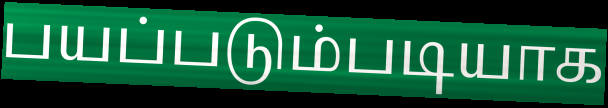
பயப்படும்படியாக